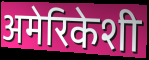
अमेरिकेशी